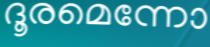
ദൂരമെന്നോ